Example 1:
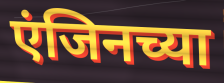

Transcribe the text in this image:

एंजिनच्या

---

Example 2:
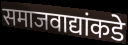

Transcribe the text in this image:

समाजवाद्यांकडे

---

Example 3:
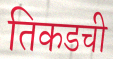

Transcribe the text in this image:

तिकडची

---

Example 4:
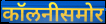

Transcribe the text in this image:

कॉलनीसमोर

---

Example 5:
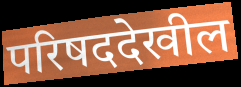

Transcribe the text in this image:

परिषददेखील